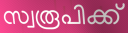
സ്വരൂപിക്ക്